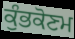
ਕੁੰਭਕੋਣਮ